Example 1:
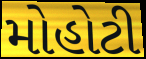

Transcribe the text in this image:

મોહોટી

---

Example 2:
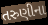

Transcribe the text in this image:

તરુણીના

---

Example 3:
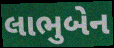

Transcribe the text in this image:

લાભુબેન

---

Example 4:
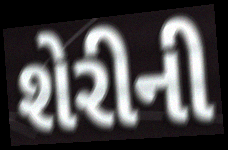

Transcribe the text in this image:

શેરીની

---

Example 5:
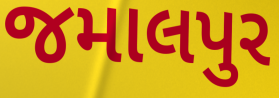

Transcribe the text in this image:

જમાલપુર